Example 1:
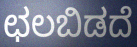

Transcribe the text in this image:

ಛಲಬಿಡದೆ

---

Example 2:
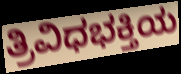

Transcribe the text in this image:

ತ್ರಿವಿಧಭಕ್ತಿಯ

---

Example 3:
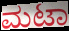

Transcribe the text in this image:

ಮಟಾ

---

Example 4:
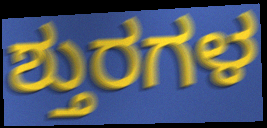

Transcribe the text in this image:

ಶ್ತುರಗಳ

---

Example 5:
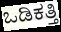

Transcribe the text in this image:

ಒಡಿಕತ್ತಿ